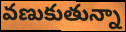
వణుకుతున్నా